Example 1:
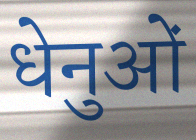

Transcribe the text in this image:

धेनुओं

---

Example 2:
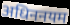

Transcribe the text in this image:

अधिननयम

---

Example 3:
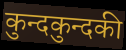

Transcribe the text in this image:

कुन्दकुन्दकी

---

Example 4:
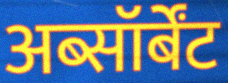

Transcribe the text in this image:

अब्सॉर्बेंट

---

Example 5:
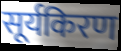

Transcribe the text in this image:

सूर्यकिरण